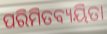
ପରିମିତବ୍ୟୟିତା